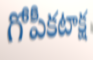
గోపీకటాక్ష